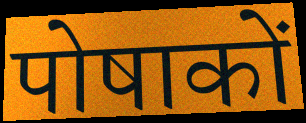
पोषाकों